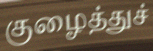
குழைத்துச்